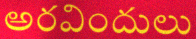
అరవిందులు